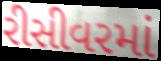
રીસીવરમાં